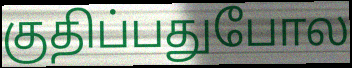
குதிப்பதுபோல